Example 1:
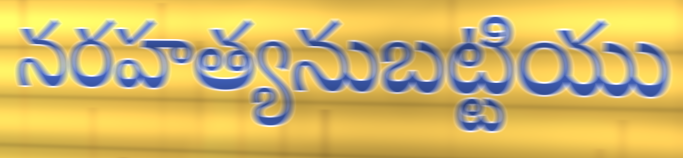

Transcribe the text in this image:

నరహత్యనుబట్టియు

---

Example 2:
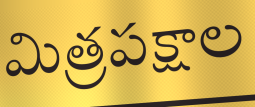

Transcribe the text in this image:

మిత్రపక్షాల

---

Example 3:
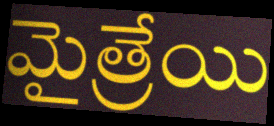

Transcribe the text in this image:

మైత్రేయి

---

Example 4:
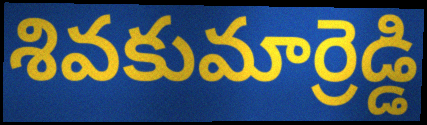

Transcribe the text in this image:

శివకుమార్రెడ్డి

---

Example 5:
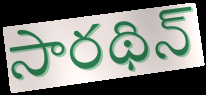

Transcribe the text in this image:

సారథిన్